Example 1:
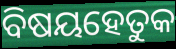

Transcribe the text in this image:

ବିଷୟହେତୁକ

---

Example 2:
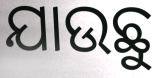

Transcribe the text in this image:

ଯାଉଛୁ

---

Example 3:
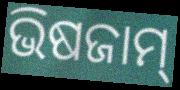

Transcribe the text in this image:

ଭିଷଜାମ୍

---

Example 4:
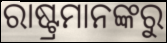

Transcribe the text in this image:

ରାଷ୍ଟ୍ରମାନଙ୍କରୁ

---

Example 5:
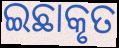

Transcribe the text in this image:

ଇଛାକୃତ